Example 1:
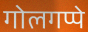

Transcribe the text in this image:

गोलगप्पे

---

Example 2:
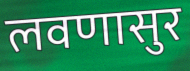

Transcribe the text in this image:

लवणासुर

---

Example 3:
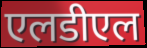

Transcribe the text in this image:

एलडीएल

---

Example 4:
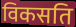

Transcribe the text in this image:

विकसति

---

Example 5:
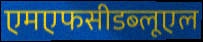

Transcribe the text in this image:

एमएफसीडब्‍लूएल